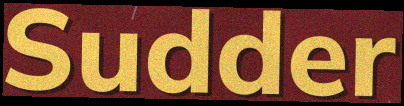
Sudder